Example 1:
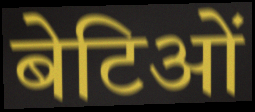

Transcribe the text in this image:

बेटिओं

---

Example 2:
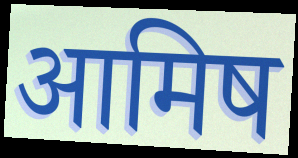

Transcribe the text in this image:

आमिष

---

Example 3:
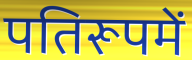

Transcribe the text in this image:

पतिरूपमें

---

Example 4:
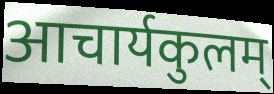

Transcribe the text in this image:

आचार्यकुलम्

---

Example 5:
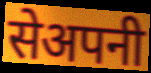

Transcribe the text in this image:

सेअपनी